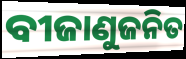
ବୀଜାଣୁଜନିତ